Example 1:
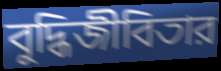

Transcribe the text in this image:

বুদ্ধিজীবিতার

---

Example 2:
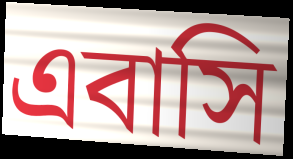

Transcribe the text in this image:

এবাসি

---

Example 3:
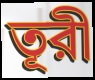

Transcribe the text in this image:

তূরী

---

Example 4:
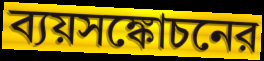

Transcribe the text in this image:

ব্যয়সঙ্কোচনের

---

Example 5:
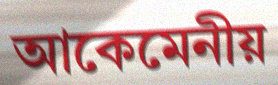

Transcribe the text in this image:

আকেমেনীয়